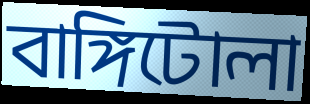
বাঙ্গিটোলা